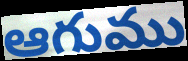
ఆగుము